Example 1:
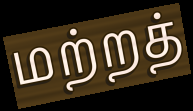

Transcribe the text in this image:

மற்றத்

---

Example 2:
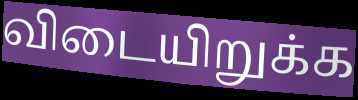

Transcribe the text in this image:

விடையிறுக்க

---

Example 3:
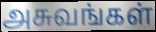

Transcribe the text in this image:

அசுவங்கள்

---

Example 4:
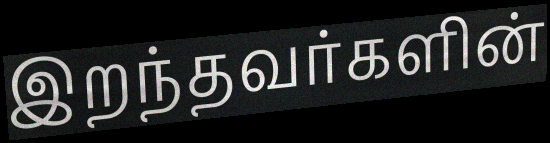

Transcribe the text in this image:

இறந்தவர்களின்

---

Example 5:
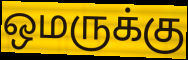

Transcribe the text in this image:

ஒமருக்கு